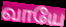
வாயே